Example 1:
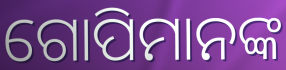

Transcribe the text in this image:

ଗୋପିମାନଙ୍କ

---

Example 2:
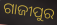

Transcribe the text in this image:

ଗାଜୀପୁର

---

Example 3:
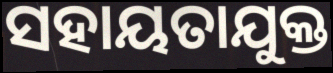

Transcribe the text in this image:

ସହାୟତାଯୁକ୍ତ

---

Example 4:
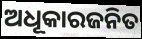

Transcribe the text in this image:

ଅଧୂକାରଜନିତ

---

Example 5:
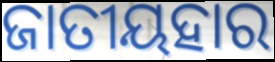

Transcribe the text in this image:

ଜାତୀୟହାର